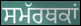
ਸਮੱਰਥਕਾਂ